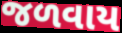
જળવાય